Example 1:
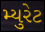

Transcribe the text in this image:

મ્યુરેટ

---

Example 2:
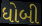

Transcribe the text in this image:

ધોબી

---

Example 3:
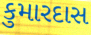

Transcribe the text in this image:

કુમારદાસ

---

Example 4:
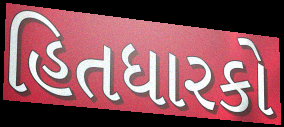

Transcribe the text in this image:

હિતધારકો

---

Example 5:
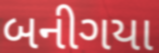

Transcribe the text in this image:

બનીગયા